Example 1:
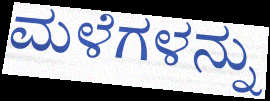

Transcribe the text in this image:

ಮಳೆಗಳನ್ನು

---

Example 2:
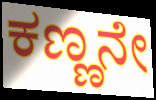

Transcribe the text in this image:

ಕಣ್ಣನೇ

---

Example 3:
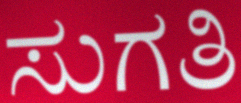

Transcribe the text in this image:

ಸುಗತಿ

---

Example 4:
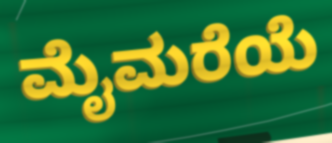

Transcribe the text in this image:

ಮೈಮರೆಯೆ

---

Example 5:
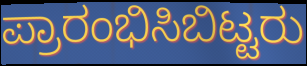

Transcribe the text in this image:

ಪ್ರಾರಂಭಿಸಿಬಿಟ್ಟರು